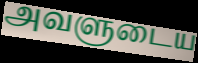
அவளுடைய